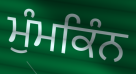
ਮੁੰਮਕਿੰਨ